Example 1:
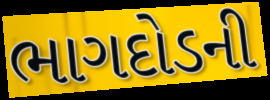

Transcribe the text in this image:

ભાગદોડની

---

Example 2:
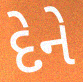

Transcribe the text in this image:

દેને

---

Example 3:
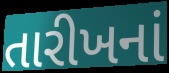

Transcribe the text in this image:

તારીખનાં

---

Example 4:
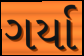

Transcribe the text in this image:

ગર્યા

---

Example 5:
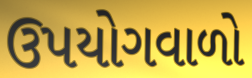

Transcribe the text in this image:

ઉપયોગવાળો